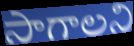
సాగాలని